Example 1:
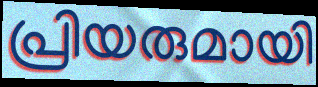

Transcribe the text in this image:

പ്രിയരുമായി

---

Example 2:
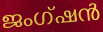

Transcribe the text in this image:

ജംഗ്ഷൻ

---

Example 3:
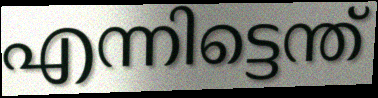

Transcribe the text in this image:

എന്നിട്ടെന്ത്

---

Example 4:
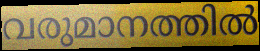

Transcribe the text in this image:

വരുമാനത്തിൽ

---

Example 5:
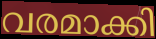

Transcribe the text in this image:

വരമാക്കി